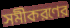
সমীকরণের